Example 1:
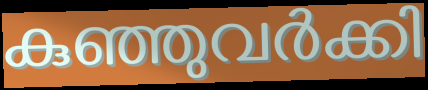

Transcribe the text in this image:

കുഞ്ഞുവർക്കി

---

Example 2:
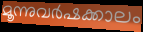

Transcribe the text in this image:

മൂന്നുവർഷക്കാലം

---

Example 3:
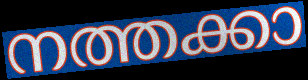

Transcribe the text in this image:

നത്തക്കാ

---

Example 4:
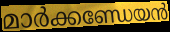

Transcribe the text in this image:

മാർക്കണ്ഡേയൻ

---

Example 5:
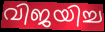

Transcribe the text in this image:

വിജയിച്ച